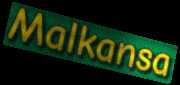
Malkansa